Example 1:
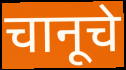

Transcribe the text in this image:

चानूचे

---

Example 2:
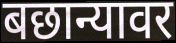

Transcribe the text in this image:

बछान्यावर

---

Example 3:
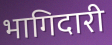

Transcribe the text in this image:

भागिदारी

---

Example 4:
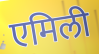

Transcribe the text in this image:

एमिली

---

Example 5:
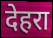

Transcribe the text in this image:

देहरा